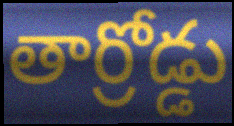
తార్రోడ్డు